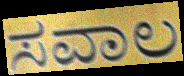
ಸವಾಲ